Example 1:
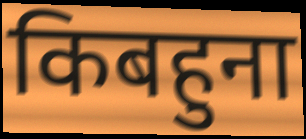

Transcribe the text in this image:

किबहुना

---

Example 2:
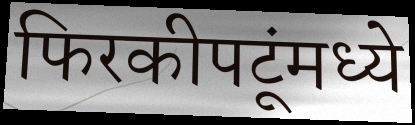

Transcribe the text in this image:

फिरकीपटूंमध्ये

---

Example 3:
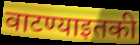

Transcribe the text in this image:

वाटण्याइतकी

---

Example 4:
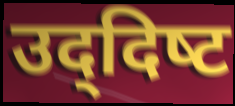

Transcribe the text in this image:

उद्‌दिष्‍ट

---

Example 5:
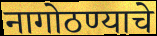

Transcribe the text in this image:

नागोठण्याचे